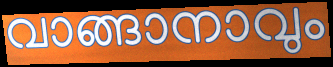
വാങ്ങാനാവും